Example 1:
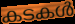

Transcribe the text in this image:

കടകൾ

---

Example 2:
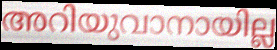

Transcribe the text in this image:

അറിയുവാനായില്ല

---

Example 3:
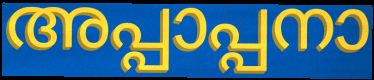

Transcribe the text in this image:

അപ്പാപ്പനാ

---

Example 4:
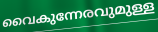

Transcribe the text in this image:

വൈകുന്നേരവുമുള്ള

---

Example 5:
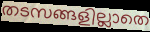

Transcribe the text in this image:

തടസങ്ങളില്ലാതെ